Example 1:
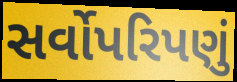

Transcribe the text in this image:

સર્વોપરિપણું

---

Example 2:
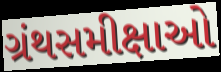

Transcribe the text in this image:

ગ્રંથસમીક્ષાઓ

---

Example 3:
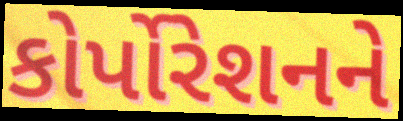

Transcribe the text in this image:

કોર્પોરેશનને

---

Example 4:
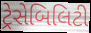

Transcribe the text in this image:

ટ્રેસેબિલિટી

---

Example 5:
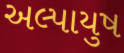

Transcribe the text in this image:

અલ્પાયુષ